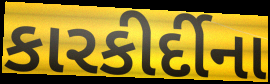
કારકીર્દીના